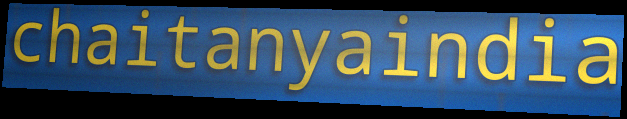
chaitanyaindia